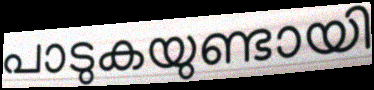
പാടുകയുണ്ടായി